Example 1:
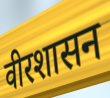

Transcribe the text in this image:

वीरशासन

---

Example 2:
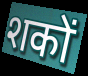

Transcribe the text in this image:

शकों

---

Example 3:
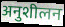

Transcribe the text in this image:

अनुशीलन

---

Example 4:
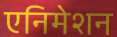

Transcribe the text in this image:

एनिमेशन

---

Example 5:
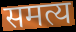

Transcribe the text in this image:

समत्य